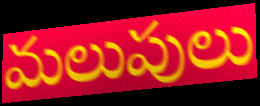
మలుపులు